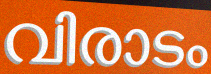
വിരാടം